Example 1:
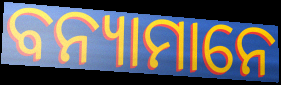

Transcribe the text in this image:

ବନ୍ୟାମାନେ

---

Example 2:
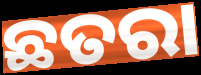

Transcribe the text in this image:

ଛତରା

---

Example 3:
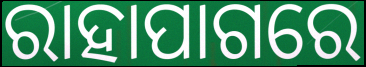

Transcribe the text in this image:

ରାହାପାଗରେ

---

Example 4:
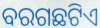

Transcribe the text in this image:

ବରଗଛଟିଏ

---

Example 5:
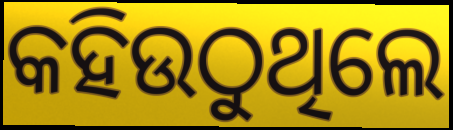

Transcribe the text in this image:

କହିଉଠୁଥିଲେ